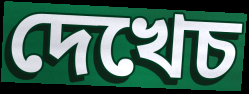
দেখেচ